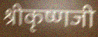
श्रीकृष्णजी